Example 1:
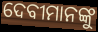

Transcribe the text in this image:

ଦେବୀମାନଙ୍କୁ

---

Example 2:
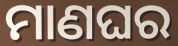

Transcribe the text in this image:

ମାଣଘର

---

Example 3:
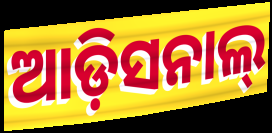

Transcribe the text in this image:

ଆଡ଼ିସନାଲ୍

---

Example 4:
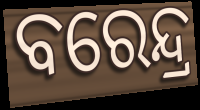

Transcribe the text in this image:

ବରେନ୍ଦ୍ର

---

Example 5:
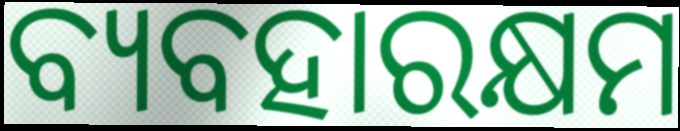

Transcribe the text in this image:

ବ୍ୟବହାରକ୍ଷମ